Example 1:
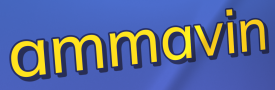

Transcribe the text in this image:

ammavin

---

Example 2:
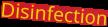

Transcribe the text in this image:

Disinfection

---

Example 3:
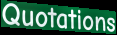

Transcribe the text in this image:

Quotations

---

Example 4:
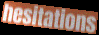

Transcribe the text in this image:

hesitations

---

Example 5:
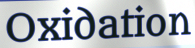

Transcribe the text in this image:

Oxidation